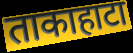
ताकाहाटा